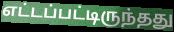
எட்டப்பட்டிருந்தது